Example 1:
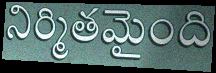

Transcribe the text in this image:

నిర్మితమైంది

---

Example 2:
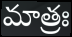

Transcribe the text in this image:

మాత్రః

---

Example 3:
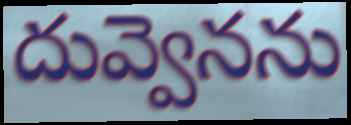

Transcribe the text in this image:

దువ్వెనను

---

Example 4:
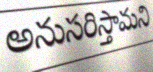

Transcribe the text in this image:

అనుసరిస్తామని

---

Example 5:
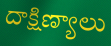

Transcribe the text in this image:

దాక్షిణ్యాలు